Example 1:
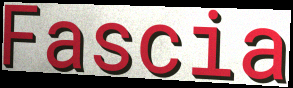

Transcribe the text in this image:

Fascia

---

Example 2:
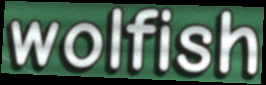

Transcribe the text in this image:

wolfish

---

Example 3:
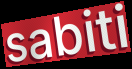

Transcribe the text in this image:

sabiti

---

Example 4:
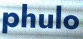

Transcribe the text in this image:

phulo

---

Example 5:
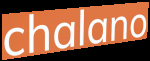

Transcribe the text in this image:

chalano